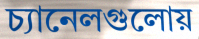
চ্যানেলগুলোয়